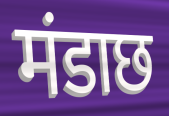
मंडाछ